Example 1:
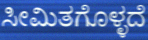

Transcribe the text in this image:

ಸೀಮಿತಗೊಳ್ಳದೆ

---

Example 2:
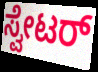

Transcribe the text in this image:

ಸ್ವೇಟರ್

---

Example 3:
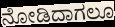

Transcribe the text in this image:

ನೋಡಿದಾಗಲೂ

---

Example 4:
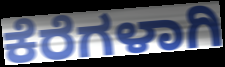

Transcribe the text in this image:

ಕೆರೆಗಳಾಗಿ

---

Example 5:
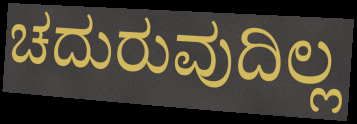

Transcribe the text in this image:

ಚದುರುವುದಿಲ್ಲ